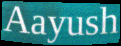
Aayush